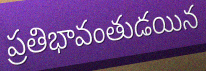
ప్రతిభావంతుడయిన